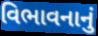
વિભાવનાનું